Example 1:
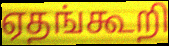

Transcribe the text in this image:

ஏதங்கூறி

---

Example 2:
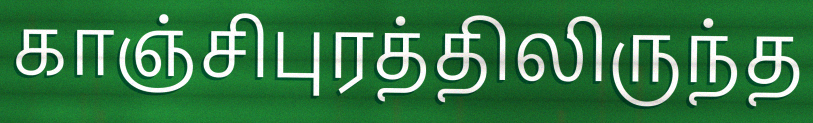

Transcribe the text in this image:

காஞ்சிபுரத்திலிருந்த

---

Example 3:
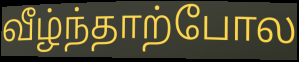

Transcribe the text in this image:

வீழ்ந்தாற்போல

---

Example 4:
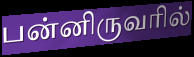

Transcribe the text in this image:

பன்னிருவரில்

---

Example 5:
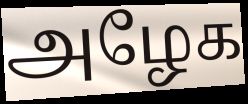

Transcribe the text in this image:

அழேக